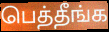
பெத்தீங்க